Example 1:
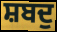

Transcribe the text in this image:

ਸ਼ਬਦੁ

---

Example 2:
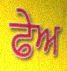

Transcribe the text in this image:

ਫੇਅ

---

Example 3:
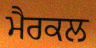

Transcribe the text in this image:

ਮੈਰਕਲ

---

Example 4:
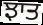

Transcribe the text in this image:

ਝਾਤ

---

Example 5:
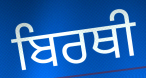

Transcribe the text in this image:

ਬਿਰਥੀ